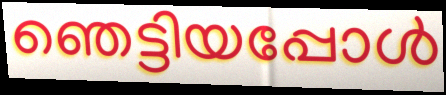
ഞെട്ടിയപ്പോൾ